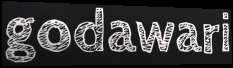
godawari